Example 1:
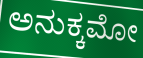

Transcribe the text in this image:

ಅನುಕ್ಕಮೋ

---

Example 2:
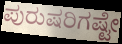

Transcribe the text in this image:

ಪುರುಷರಿಗಷ್ಟೇ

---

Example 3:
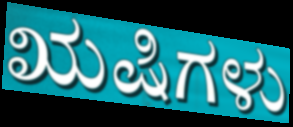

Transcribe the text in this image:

ಋಷಿಗಳು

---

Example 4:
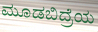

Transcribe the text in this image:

ಮೂಡಬಿದ್ರೆಯ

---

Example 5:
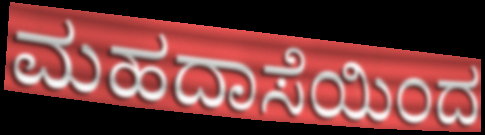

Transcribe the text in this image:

ಮಹದಾಸೆಯಿಂದ